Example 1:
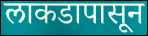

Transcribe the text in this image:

लाकडापासून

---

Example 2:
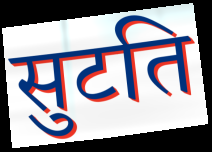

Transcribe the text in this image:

सुटति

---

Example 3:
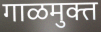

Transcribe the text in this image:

गाळमुक्त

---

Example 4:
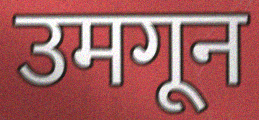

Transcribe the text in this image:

उमगून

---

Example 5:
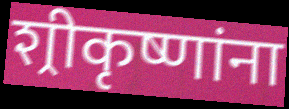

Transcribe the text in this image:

श्रीकृष्णांना